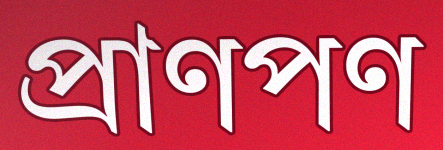
প্রাণপণ